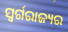
ସ୍ୱର୍ଗରାଜ୍ୟର